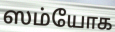
ஸம்யோக